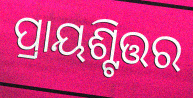
ପ୍ରାୟଶ୍ଟିତ୍ତର